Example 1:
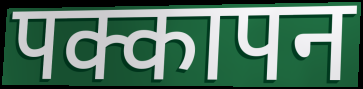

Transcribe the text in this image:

पक्कापन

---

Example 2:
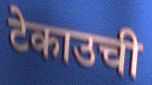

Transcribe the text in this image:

टेकाउची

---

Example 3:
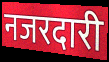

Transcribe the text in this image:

नजरदारी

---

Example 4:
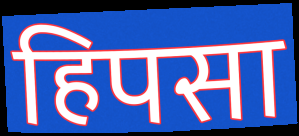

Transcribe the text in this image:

हिपसा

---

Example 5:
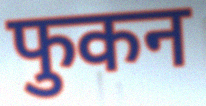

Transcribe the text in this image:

फुकन